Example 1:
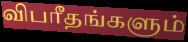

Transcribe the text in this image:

விபரீதங்களும்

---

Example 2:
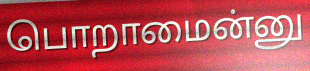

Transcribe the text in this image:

பொறாமைன்னு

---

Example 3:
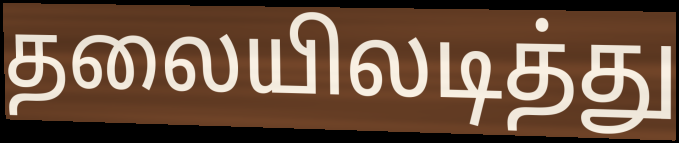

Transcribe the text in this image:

தலையிலடித்து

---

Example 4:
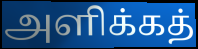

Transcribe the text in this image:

அளிக்கத்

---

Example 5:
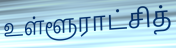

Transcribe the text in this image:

உள்ளூராட்சித்